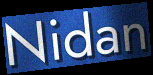
Nidan